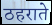
ठहराते